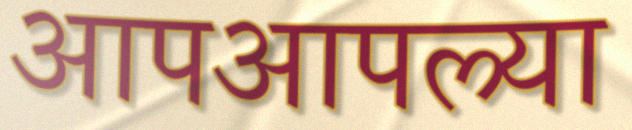
आपआपल्या